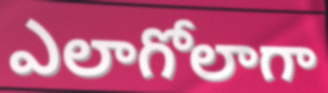
ఎలాగోలాగా